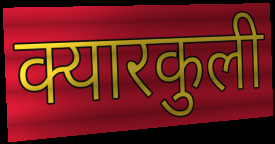
क्यारकुली